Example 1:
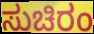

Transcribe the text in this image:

ಸುಚಿರಂ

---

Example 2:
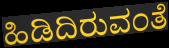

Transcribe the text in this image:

ಹಿಡಿದಿರುವಂತೆ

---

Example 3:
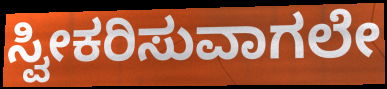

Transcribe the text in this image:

ಸ್ವೀಕರಿಸುವಾಗಲೇ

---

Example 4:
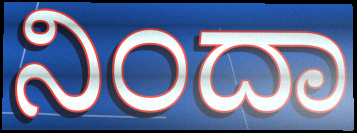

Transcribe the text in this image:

ನಿಂದಾ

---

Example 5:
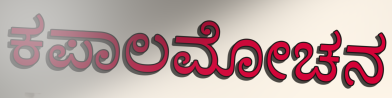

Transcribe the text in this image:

ಕಪಾಲಮೋಚನ